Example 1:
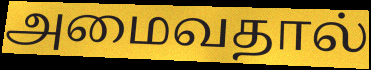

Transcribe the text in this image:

அமைவதால்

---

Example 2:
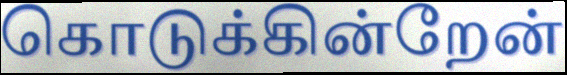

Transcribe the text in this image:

கொடுக்கின்றேன்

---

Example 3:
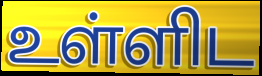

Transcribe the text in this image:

உள்ளிட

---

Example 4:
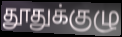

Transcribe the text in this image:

தூதுக்குழு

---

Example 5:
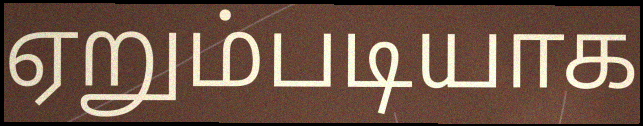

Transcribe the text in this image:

ஏறும்படியாக